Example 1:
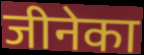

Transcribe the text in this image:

जीनेका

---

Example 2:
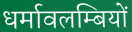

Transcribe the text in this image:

धर्मावलम्बियों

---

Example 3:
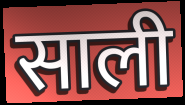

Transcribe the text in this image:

साली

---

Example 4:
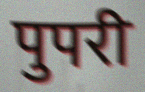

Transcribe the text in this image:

पुपरी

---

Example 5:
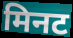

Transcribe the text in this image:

मिनट